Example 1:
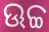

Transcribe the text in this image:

ଊଚ୍ଚ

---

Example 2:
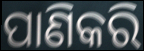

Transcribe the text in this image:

ପାଣିକରି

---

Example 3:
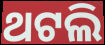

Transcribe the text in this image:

ଥଟଲି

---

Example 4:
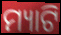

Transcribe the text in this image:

ମ୍ୟାଟି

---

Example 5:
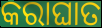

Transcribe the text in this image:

କରାଘାତ